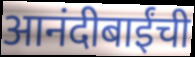
आनंदीबाईंची